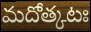
మదోత్కటః